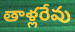
తాళ్లరేవు